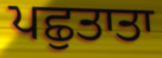
ਪਛੁਤਾਤਾ